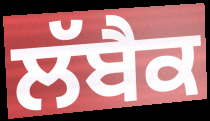
ਲੱਬੈਕ